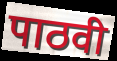
पाठवी